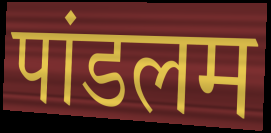
पांडलम